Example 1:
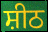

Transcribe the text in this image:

ਸ਼ੀਠ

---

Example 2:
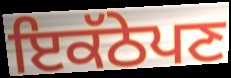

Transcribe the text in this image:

ਇਕੱਠੇਪਣ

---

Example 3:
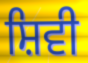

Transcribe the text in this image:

ਸ਼ਿਵੀ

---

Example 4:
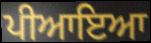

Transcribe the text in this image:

ਪੀਆਇਆ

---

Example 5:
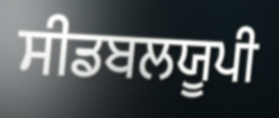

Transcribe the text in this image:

ਸੀਡਬਲਯੂਪੀ